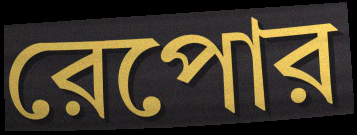
রেপোর